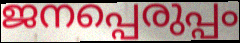
ജനപ്പെരുപ്പം